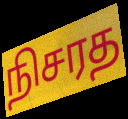
நிசரத